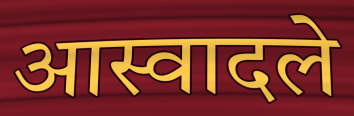
आस्वादले